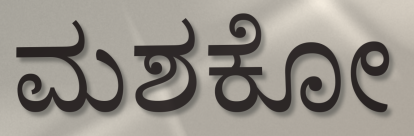
ಮಶಕೋ